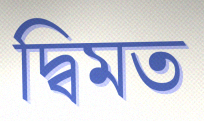
দ্বিমত